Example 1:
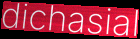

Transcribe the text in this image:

dichasial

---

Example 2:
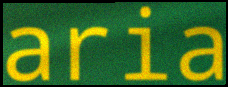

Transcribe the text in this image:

aria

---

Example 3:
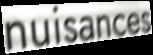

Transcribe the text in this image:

nuisances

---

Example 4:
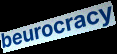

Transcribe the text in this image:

beurocracy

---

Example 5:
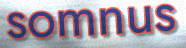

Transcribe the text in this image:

somnus